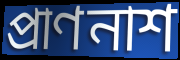
প্রাণনাশ